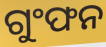
ଗୁଂଫନ